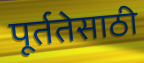
पूर्ततेसाठी